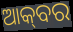
ଆକ୍‌ବର